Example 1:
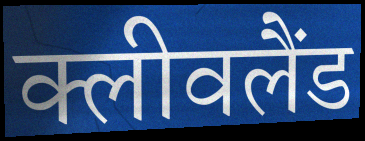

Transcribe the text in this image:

क्‍लीवलैंड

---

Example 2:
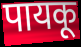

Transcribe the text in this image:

पायकू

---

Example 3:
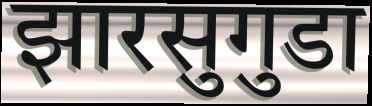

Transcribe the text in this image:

झारसुगुडा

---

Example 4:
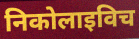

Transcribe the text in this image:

निकोलाइविच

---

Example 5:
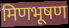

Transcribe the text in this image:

मिणभूषण